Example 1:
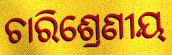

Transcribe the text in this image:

ଚାରିଶ୍ରେଣୀୟ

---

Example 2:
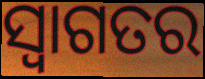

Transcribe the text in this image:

ସ୍ଵାଗତର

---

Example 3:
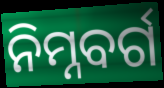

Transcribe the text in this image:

ନିମ୍ନବର୍ଗ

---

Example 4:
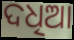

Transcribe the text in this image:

ଦଧିଆ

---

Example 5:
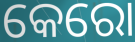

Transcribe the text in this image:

କେରୋ